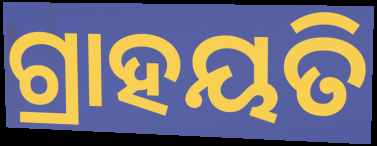
ଗ୍ରାହୟତି